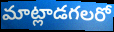
మాట్లాడగలరో